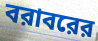
বরাবরের